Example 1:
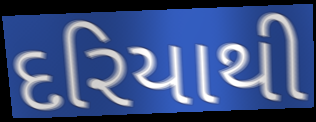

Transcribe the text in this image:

દરિયાથી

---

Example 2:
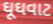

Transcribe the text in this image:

ઘૂઘવાટ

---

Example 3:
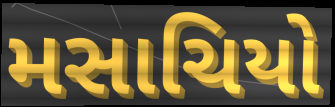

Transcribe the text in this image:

મસાચિયો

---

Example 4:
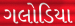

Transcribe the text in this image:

ગલોડિયા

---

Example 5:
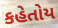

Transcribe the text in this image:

કહેતોય